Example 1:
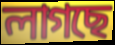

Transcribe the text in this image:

লাগছে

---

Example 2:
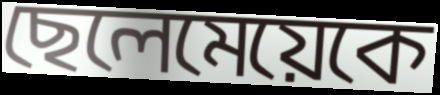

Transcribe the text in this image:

ছেলেমেয়েকে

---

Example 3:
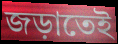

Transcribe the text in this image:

জড়াতেই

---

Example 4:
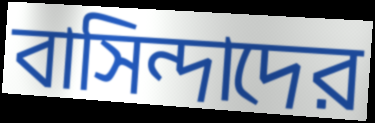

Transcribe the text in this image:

বাসিন্দাদের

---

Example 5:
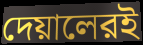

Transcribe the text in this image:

দেয়ালেরই